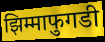
झिम्माफुगडी